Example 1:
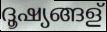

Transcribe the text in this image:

ദൂഷ്യങ്ങള്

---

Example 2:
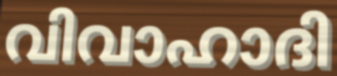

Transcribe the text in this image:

വിവാഹാദി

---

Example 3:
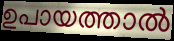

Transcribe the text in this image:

ഉപായത്താൽ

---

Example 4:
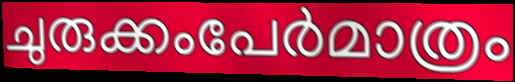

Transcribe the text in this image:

ചുരുക്കംപേർമാത്രം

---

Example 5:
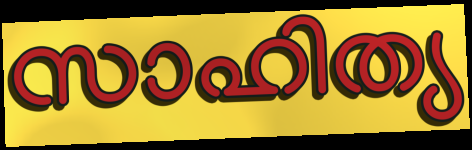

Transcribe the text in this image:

സാഹിത്യ